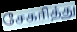
சேகரித்து